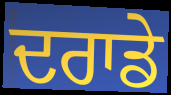
ਦਰਾਡੇ